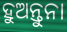
ହୁଅନ୍ତୁନା